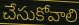
చేసుకోవాలి